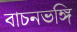
বাচনভঙ্গি